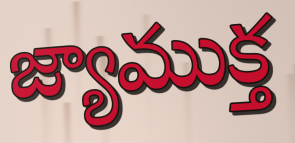
జ్యాముక్త